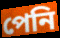
পেনি